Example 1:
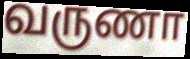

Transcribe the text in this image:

வருணா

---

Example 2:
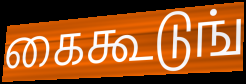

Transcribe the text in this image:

கைகூடுங்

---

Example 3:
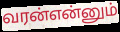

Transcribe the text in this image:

வரன்என்னும்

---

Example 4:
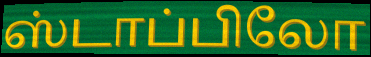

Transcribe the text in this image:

ஸ்டாப்பிலோ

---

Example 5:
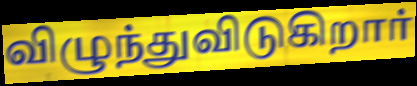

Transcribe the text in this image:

விழுந்துவிடுகிறார்